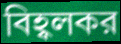
বিহ্বলকর